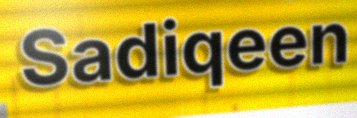
Sadiqeen